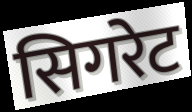
सिगरेट